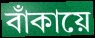
বাঁকায়ে